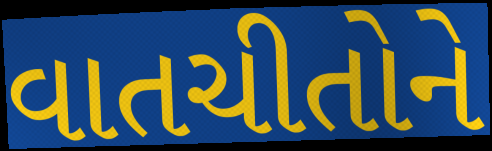
વાતચીતોને